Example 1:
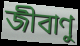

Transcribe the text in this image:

জীবাণু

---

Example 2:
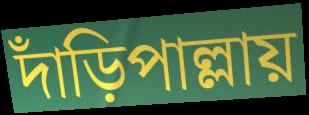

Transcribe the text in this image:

দাঁড়িপাল্লায়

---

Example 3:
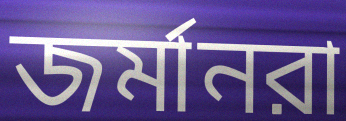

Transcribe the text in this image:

জর্মানরা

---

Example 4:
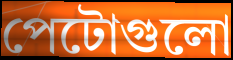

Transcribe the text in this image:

পেটোগুলো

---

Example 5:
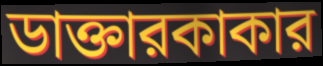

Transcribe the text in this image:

ডাক্তারকাকার